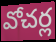
వోచర్ల